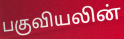
பகுவியலின்